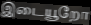
இடையூறோ